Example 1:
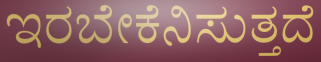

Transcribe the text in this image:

ಇರಬೇಕೆನಿಸುತ್ತದೆ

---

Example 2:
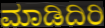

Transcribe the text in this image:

ಮಾಡಿದಿರಿ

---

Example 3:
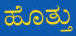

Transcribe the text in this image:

ಹೊತ್ತು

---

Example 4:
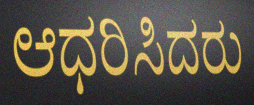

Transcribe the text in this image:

ಆಧರಿಸಿದರು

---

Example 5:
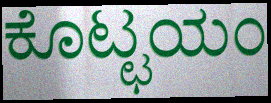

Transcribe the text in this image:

ಕೊಟ್ಟಯಂ